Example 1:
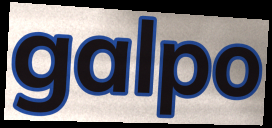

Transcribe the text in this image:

galpo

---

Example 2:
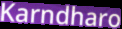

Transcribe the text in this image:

Karndharo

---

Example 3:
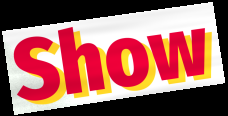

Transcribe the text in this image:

Show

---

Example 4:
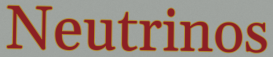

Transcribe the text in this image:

Neutrinos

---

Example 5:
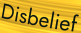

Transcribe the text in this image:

Disbelief